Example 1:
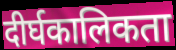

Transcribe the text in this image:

दीर्घकालिकता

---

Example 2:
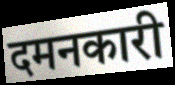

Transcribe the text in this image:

दमनकारी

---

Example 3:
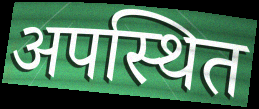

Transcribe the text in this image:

अपस्थित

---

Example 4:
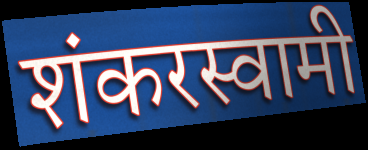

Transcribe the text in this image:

शंकरस्वामी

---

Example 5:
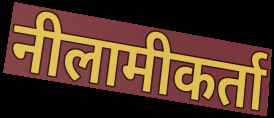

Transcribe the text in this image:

नीलामीकर्ता